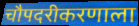
चौपदरीकरणाला